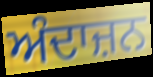
ਅੰਦਾਜ਼ਨ